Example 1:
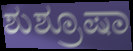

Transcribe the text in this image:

ಶುಶ್ರೂಷಾ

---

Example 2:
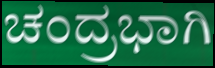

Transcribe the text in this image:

ಚಂದ್ರಭಾಗಿ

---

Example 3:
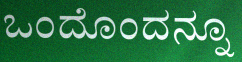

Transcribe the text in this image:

ಒಂದೊಂದನ್ನೂ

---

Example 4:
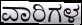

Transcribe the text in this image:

ವಾರಿಗಳ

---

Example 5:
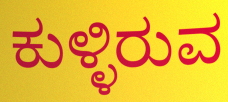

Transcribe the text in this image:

ಕುಳ್ಳಿರುವ